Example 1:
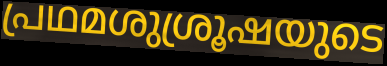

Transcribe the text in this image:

പ്രഥമശുശ്രൂഷയുടെ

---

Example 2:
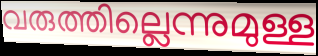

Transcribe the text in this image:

വരുത്തില്ലെന്നുമുള്ള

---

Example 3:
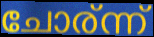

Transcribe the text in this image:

ചോര്ന്ന്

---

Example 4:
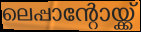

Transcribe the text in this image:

ലെപ്പാന്റോയ്ക്ക്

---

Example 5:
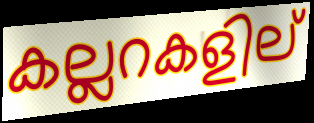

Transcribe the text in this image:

കല്ലറകളില്